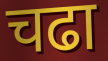
चढा